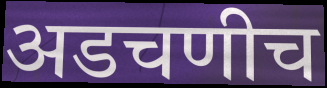
अडचणीच